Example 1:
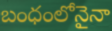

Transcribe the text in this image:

బంధంలోనైనా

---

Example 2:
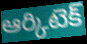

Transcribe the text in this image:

ఆర్కిటెక్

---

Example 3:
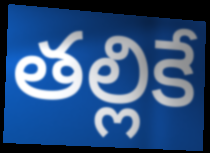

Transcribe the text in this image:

తల్లికే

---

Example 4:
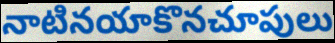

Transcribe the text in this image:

నాటినయాకొనచూపులు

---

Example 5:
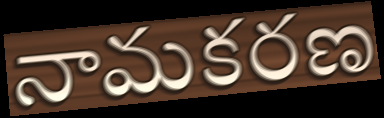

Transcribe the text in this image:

నామకరణ